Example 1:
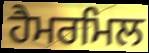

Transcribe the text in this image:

ਹੈਮਰਮਿਲ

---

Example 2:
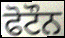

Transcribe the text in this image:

ਫੋਟੌਨ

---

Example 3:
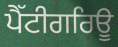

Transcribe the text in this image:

ਪੈੱਟੀਗਰਿਊ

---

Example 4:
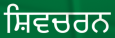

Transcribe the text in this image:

ਸ਼ਿਵਚਰਨ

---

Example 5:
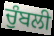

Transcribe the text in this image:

ਚੁੰਬਲੀ